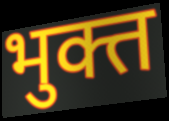
भुक्त